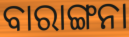
ବାରାଙ୍ଗନା